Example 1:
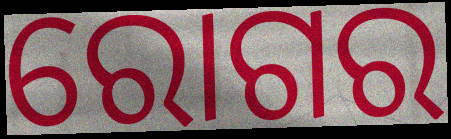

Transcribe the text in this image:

ରୋଗର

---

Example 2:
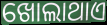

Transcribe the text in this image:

ଖୋଲାଥାଏ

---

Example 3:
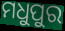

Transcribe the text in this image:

ମଧୁପୁର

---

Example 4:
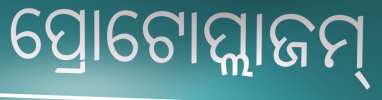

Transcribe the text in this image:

ପ୍ରୋଟୋପ୍ଲାଜମ୍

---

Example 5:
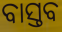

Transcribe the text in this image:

ବାସ୍ତବ